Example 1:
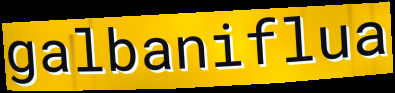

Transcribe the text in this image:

galbaniflua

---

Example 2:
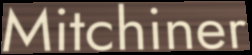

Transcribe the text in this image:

Mitchiner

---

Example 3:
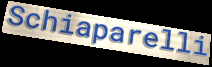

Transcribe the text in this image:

Schiaparelli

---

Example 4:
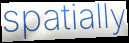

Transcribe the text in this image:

spatially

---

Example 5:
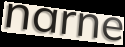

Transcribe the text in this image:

narne